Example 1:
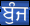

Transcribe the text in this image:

ਬੁੰਜ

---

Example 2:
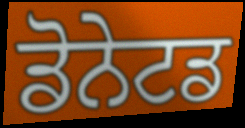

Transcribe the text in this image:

ਡੋਨੇਟਡ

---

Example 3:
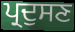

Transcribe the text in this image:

ਪ੍ਰਦੁਸਣ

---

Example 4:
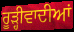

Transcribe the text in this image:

ਰੂੜ੍ਹੀਵਾਦੀਆਂ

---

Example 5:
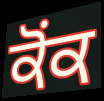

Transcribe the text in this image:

ਕੋਂਕ